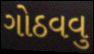
ગોઠવવુ